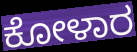
ಕೋಳಾರ